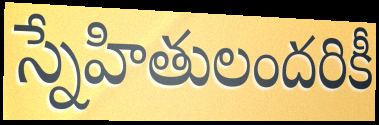
స్నేహితులందరికీ